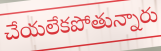
చేయలేకపోతున్నారు